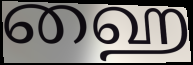
ஹை